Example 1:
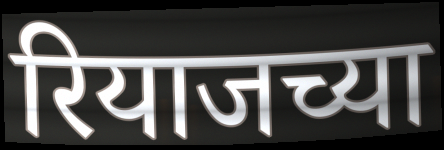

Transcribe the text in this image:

रियाजच्या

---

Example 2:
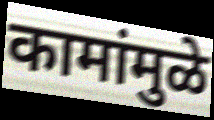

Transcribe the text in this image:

कामांमुळे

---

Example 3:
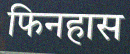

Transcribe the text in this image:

फिनहास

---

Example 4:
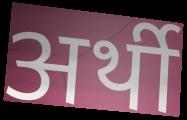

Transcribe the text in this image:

अर्थी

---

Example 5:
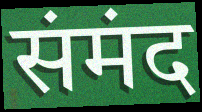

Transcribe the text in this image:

संमंद